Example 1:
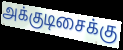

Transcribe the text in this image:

அக்குடிசைக்கு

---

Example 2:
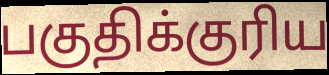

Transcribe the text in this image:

பகுதிக்குரிய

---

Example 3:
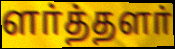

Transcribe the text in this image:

ளர்த்தளர்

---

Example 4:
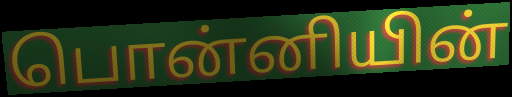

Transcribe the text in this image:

பொன்னியின்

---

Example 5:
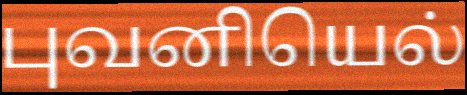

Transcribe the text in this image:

புவனியெல்